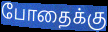
போதைக்கு